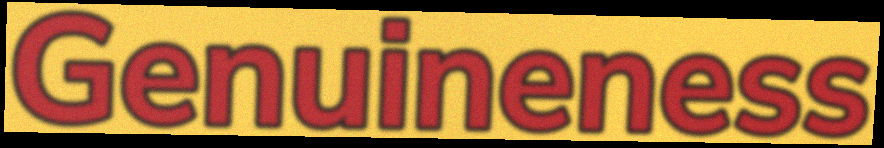
Genuineness